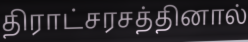
திராட்சரசத்தினால்